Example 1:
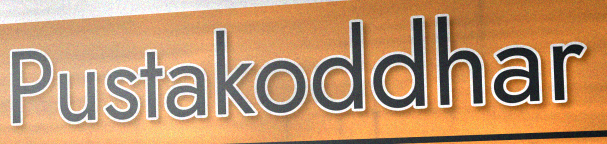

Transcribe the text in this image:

Pustakoddhar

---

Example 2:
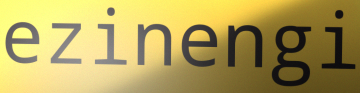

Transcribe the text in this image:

ezinengi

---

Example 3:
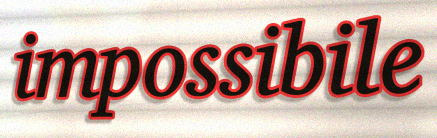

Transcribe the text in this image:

impossibile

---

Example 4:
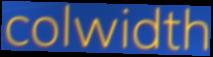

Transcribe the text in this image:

colwidth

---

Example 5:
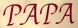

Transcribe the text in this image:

PAPA